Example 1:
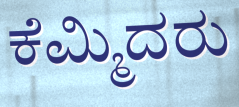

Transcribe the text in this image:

ಕೆಮ್ಮಿದರು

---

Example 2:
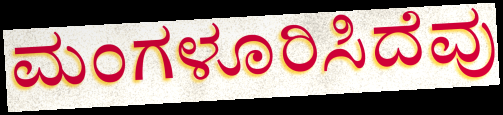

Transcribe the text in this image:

ಮಂಗಳೂರಿಸಿದೆವು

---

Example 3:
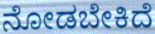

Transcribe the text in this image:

ನೋಡಬೇಕಿದೆ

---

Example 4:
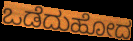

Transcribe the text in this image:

ಒಡೆದುಹೋದ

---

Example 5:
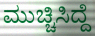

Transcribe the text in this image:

ಮುಚ್ಚಿಸಿದ್ದೆ